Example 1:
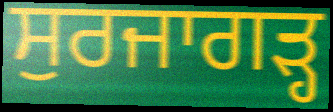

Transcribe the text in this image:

ਸੁਰਜਾਗੜ੍ਹ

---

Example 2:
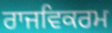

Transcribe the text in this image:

ਰਾਜਵਿਕਰਮ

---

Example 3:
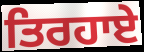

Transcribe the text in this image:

ਤਿਰਹਾਏ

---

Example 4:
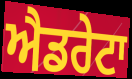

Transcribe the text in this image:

ਐਡਰੇਟਾ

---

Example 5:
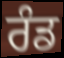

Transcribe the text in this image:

ਰੰਡ